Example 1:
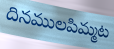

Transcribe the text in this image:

దినములపిమ్మట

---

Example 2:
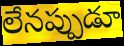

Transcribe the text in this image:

లేనప్పుడూ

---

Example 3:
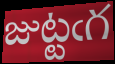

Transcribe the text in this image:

జుట్టఁగ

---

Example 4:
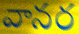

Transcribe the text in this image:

వానర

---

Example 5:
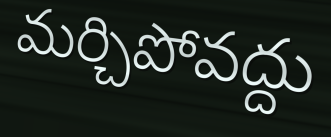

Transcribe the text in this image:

మర్చిపోవద్దు